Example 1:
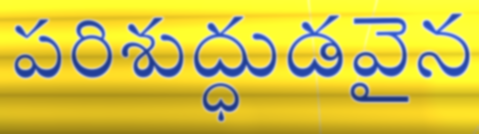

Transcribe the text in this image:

పరిశుద్ధుడవైన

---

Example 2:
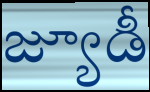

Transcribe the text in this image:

జ్యూడీ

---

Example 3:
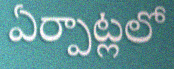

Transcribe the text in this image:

ఏర్పాట్లలో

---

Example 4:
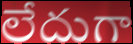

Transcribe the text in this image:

లేదుగా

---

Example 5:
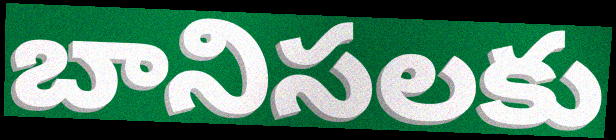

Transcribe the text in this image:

బానిసలకు